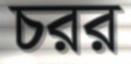
চরর